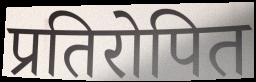
प्रतिरोपित